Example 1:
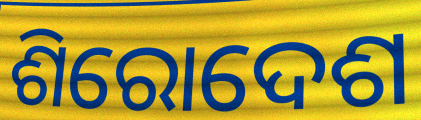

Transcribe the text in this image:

ଶିରୋଦେଶ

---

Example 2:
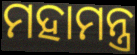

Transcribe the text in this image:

ମହାମନ୍ତ୍ର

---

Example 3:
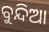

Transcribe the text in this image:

ବୁନ୍ଦିଆ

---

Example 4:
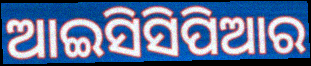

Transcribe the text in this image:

ଆଇସିସିପିଆର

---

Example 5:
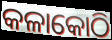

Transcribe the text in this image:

କଳାକୋଠି